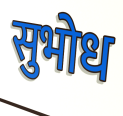
सुभोध